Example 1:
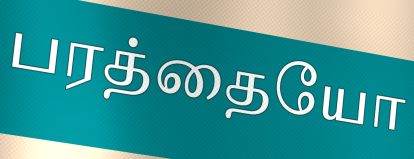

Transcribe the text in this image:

பரத்தையோ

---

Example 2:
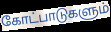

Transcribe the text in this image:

கோட்பாடுகளும்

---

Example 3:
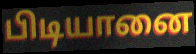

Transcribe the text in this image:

பிடியானை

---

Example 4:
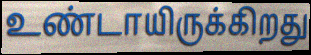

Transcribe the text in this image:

உண்டாயிருக்கிறது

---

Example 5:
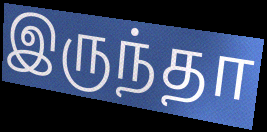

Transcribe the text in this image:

இருந்தா